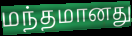
மந்தமானது